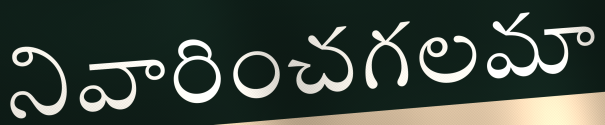
నివారించగలమా